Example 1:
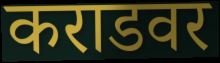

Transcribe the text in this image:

कराडवर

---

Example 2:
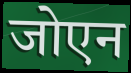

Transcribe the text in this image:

जोएन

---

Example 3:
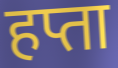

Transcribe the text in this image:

हप्ता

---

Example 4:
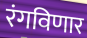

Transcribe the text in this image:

रंगविणार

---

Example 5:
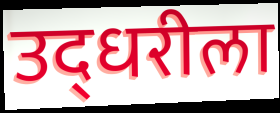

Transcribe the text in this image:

उद्धरीला